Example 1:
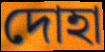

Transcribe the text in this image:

দোহা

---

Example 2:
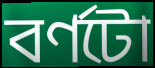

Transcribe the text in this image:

বৰ্ণটো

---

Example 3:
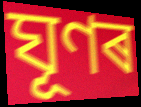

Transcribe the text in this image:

ঘূণৰ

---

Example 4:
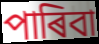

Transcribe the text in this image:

পাৰিবা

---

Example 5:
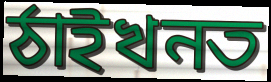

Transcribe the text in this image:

ঠাইখনত